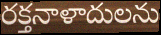
రక్తనాళాదులను